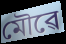
মৌৱে